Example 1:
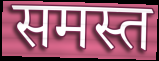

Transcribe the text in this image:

समस्त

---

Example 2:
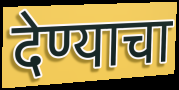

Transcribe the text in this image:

देण्याचा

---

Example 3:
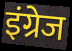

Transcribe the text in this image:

इंग्रेज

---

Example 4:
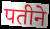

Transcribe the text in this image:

पतीने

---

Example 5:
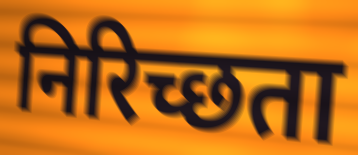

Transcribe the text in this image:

निरिच्छता